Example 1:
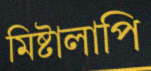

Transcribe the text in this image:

মিষ্টালাপি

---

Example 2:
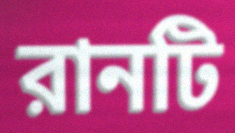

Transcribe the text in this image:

রানটি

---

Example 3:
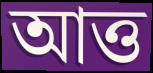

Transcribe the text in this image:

আত্ত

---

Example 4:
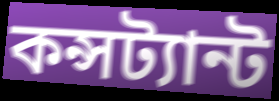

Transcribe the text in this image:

কন্সট্যান্ট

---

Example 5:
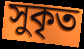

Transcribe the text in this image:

সুকৃত